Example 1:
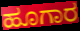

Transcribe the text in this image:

ಹೂಗಾರ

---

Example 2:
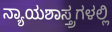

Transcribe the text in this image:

ನ್ಯಾಯಶಾಸ್ತ್ರಗಳಲ್ಲಿ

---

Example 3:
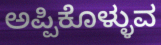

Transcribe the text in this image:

ಅಪ್ಪಿಕೊಳ್ಳುವ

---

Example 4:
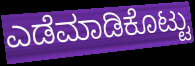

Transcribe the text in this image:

ಎಡೆಮಾಡಿಕೊಟ್ಟು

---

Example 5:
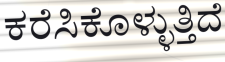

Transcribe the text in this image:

ಕರೆಸಿಕೊಳ್ಳುತ್ತಿದೆ